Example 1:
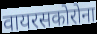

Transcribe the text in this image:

वायरसकोरोना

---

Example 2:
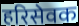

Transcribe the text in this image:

हरिसेवक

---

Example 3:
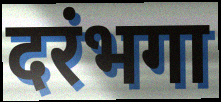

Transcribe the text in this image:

दरंभगा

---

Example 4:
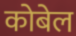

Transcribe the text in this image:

कोबेल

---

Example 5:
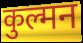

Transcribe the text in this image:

कुल्मन